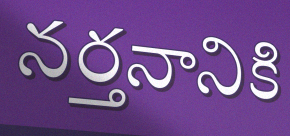
నర్తనానికి